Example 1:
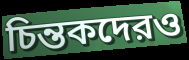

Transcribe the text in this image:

চিন্তকদেরও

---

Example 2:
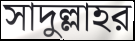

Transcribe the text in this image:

সাদুল্লাহর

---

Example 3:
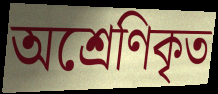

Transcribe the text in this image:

অশ্রেণিকৃত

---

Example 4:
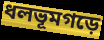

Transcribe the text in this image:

ধলভূমগড়ে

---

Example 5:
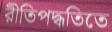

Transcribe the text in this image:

রীতিপদ্ধতিতে